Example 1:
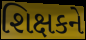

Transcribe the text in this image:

શિક્ષકને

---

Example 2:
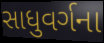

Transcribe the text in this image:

સાધુવર્ગના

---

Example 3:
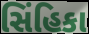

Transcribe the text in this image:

સિંહિકા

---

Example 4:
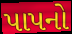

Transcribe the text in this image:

પાપનો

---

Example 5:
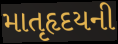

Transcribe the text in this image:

માતૃહૃદયની